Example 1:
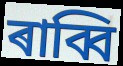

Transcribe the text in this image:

ৰাব্বি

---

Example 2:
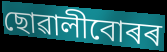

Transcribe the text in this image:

ছোৱালীবোৰৰ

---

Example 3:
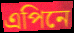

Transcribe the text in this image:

এপিনে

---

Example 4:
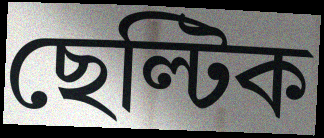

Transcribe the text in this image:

ছেল্টিক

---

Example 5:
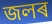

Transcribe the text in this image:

জলৰ